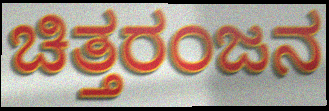
ಚಿತ್ತರಂಜನ